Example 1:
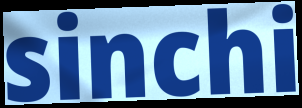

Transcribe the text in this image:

sinchi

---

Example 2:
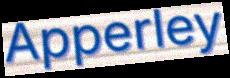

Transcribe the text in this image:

Apperley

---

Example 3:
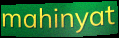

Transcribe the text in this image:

mahinyat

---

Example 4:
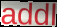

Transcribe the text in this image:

addl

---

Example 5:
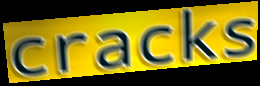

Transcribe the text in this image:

cracks